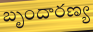
బృందారణ్య